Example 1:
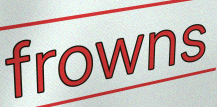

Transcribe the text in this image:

frowns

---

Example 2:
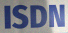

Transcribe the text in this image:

ISDN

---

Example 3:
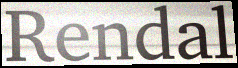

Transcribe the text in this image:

Rendal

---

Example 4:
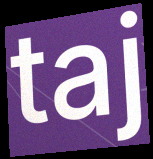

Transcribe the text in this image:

taj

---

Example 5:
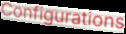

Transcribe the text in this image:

Configurations